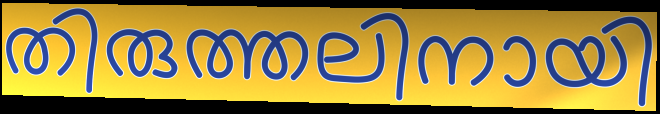
തിരുത്തലിനായി